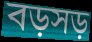
বড়সড়